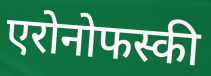
एरोनोफस्की